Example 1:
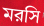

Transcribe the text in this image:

মরসি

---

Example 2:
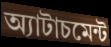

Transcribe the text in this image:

অ্যাটাচমেন্ট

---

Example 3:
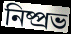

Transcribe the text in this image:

নিষ্প্রভ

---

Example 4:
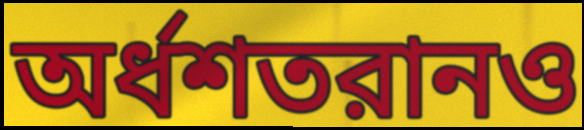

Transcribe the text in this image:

অর্ধশতরানও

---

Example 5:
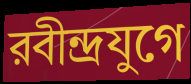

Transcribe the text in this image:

রবীন্দ্রযুগে